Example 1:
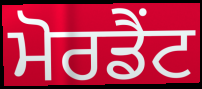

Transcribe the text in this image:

ਮੋਰਡੈਂਟ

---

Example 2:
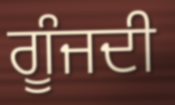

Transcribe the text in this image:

ਗੂੰਜਦੀ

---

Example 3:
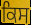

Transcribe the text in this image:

ਕਿਸ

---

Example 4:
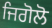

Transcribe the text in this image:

ਜਿਗੋਲੋ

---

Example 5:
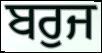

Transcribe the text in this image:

ਬਰੁਜ